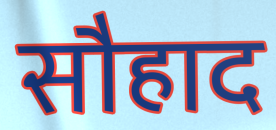
सौहाद